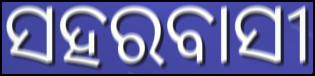
ସହରବାସୀ